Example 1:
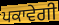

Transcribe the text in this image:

ਪਕਾਵੇਗੀ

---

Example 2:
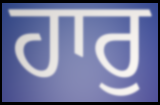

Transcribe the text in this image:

ਹਾਰੁ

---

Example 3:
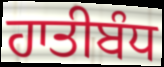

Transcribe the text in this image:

ਹਾਤੀਬੰਧ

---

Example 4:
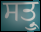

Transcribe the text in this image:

ਸਤ੍ਰੁ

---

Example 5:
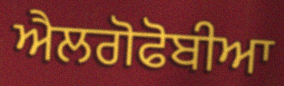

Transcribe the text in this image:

ਐਲਗੋਫੋਬੀਆ